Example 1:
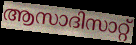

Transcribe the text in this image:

ആസാദിസാറ്റ്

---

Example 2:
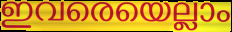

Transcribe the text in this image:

ഇവരെയെല്ലാം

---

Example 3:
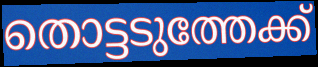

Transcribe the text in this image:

തൊട്ടടുത്തേക്ക്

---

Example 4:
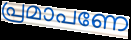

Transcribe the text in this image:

പ്രമാപണേ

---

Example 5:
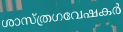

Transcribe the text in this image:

ശാസ്ത്രഗവേഷകർ